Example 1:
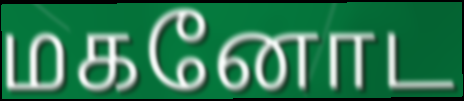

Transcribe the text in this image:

மகனோட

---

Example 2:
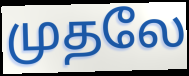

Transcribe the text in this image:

முதலே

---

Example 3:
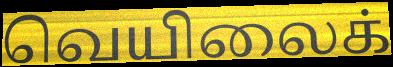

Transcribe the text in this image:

வெயிலைக்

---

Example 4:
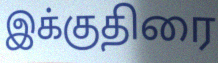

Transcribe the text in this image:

இக்குதிரை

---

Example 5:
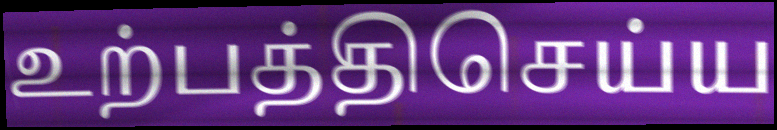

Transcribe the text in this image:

உற்பத்திசெய்ய